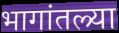
भागांतल्या